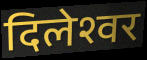
दिलेश्वर